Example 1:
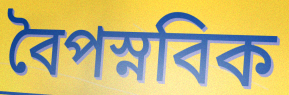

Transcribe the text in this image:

বৈপস্নবিক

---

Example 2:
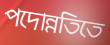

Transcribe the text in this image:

পদোন্নতিতে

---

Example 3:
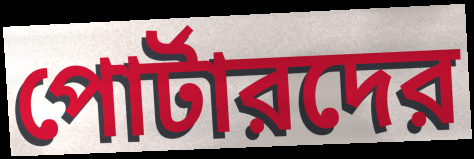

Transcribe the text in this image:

পোর্টারদের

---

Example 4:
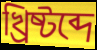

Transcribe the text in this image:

খ্রিষ্টব্দে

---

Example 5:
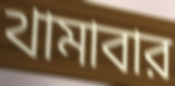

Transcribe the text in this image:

থামাবার